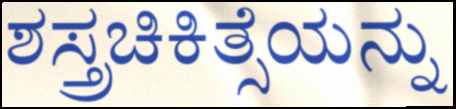
ಶಸ್ತ್ರಚಿಕಿತ್ಸೆಯನ್ನು